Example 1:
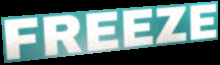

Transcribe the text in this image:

FREEZE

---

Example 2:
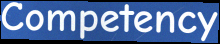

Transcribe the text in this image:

Competency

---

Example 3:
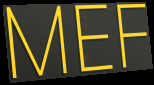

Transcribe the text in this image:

MEF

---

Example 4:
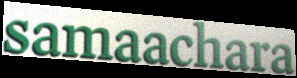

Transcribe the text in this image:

samaachara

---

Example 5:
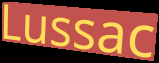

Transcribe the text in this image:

Lussac